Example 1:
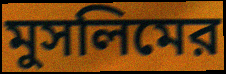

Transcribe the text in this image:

মুসলিমের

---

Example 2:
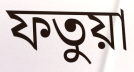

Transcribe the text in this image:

ফতুয়া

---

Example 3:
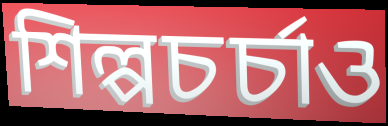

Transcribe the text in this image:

শিল্পচর্চাও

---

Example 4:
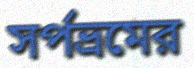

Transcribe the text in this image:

সর্পভ্রমের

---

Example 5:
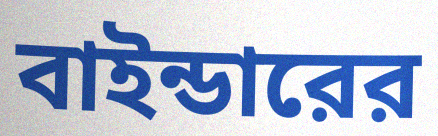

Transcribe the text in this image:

বাইন্ডারের